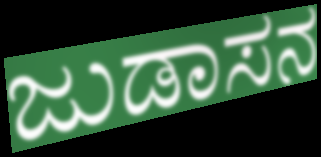
ಜುಡಾಸನ